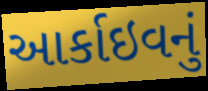
આર્કાઇવનું